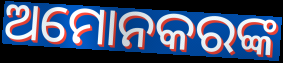
ଅମୋନକରଙ୍କ